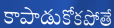
కాపాడుకోకపోతే